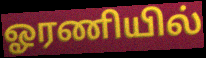
ஓரணியில்